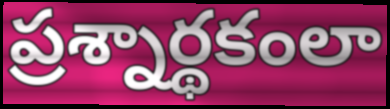
ప్రశ్నార్థకంలా